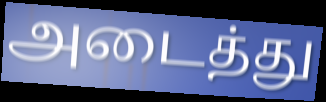
அடைத்து